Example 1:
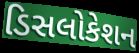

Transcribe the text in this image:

ડિસલોકેશન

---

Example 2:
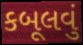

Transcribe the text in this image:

કબૂલવું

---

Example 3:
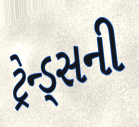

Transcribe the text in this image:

ટ્રેન્ડ્સની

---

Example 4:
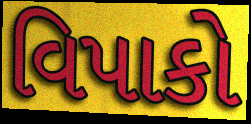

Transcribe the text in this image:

વિપાકો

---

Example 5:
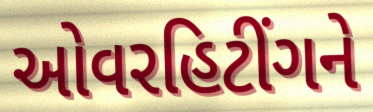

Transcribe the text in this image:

ઓવરહિટીંગને